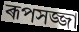
ৰূপসজ্জা